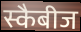
स्कैबीज